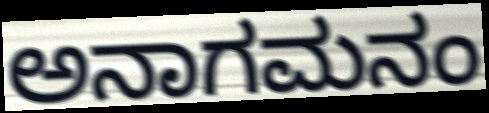
ಅನಾಗಮನಂ